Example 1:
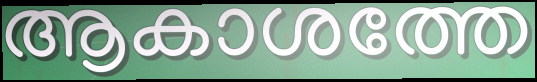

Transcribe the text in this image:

ആകാശത്തേ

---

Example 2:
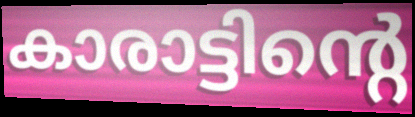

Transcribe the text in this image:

കാരാട്ടിന്റെ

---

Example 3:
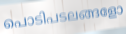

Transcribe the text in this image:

പൊടിപടലങ്ങളോ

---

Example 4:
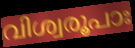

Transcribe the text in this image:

വിശ്വരൂപാഃ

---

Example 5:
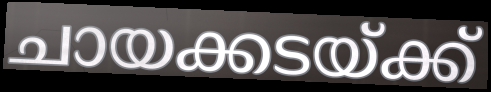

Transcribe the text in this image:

ചായക്കടയ്ക്ക്